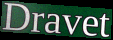
Dravet